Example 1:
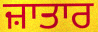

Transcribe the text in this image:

ਜ਼ਾਤਾਰ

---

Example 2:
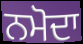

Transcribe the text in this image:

ਨਮੋਦਾ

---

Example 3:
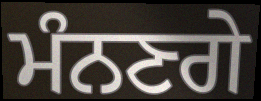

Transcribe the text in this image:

ਮੰਨਣਗੇ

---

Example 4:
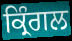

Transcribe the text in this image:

ਕ੍ਰਿੰਗਲ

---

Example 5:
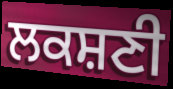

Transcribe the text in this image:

ਲਕਸ਼ਣੀ